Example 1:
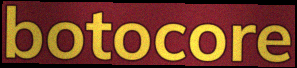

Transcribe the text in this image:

botocore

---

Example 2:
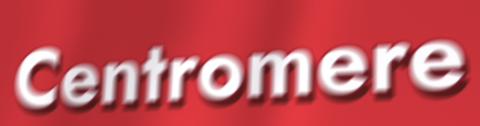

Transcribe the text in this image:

Centromere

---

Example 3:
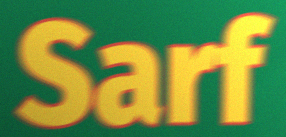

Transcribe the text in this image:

Sarf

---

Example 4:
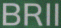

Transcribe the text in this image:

BRII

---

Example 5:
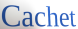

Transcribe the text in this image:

Cachet